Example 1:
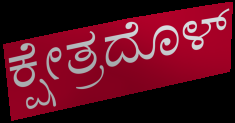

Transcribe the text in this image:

ಕ್ಷೇತ್ರದೊಳ್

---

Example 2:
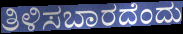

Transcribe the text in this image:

ತಿಳಿಸಬಾರದೆಂದು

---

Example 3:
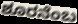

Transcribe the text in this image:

ಶೂರನೆಂಬ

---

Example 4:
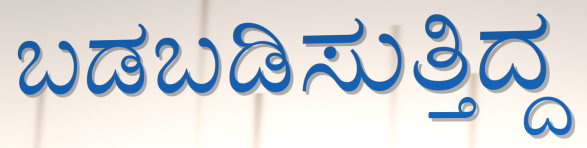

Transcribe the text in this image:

ಬಡಬಡಿಸುತ್ತಿದ್ದ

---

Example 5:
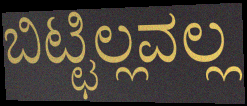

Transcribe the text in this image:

ಬಿಟ್ಟಿಲ್ಲವಲ್ಲ